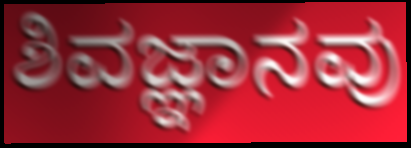
ಶಿವಜ್ಞಾನವು